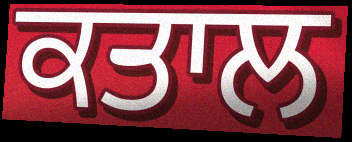
ਕਤਾਲ